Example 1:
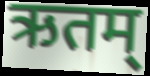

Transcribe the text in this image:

ऋतम्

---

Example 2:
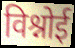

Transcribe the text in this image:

विश्नोई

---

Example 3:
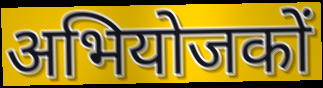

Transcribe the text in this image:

अभियोजकों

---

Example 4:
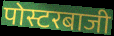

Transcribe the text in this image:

पोस्टरबाजी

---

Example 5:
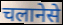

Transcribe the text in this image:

चलानेसे